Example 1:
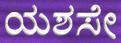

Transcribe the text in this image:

ಯಶಸೇ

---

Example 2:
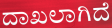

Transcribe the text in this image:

ದಾಖಲಾಗಿದೆ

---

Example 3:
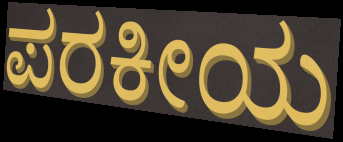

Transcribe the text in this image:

ಪರಕೀಯ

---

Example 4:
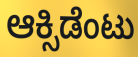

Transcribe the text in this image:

ಆಕ್ಸಿಡೆಂಟು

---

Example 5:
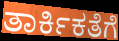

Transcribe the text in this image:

ತಾರ್ಕಿಕತೆಗೆ